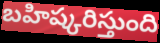
బహిష్కరిస్తుంది